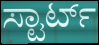
ಸ್ಟಾರ್ಟ್